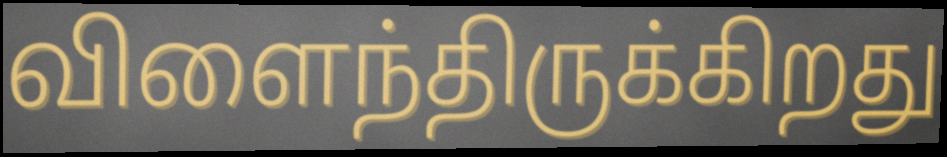
விளைந்திருக்கிறது